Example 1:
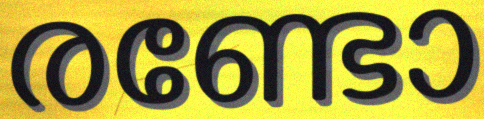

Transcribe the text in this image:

രണ്ടോ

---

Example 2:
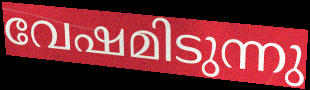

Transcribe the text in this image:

വേഷമിടുന്നു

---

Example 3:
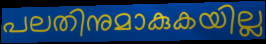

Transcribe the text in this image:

പലതിനുമാകുകയില്ല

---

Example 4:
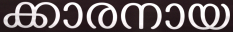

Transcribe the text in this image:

ക്കാരനായ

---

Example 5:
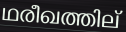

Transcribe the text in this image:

ഥരീഖത്തില്